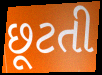
છૂટતી